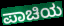
ಪಾಚಿಯ